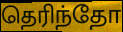
தெரிந்தோ